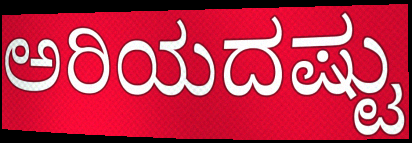
ಅರಿಯದಷ್ಟು